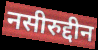
नसीरुद्दीन